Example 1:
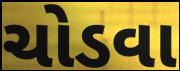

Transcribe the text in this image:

ચોડવા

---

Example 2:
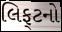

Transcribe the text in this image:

લિફ્‌ટનો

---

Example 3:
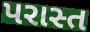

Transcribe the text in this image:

પરાસ્ત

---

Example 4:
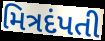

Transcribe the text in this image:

મિત્રદંપતી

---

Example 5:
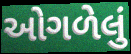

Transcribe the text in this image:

ઓગળેલું